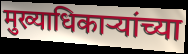
मुख्याधिकाऱ्यांच्या